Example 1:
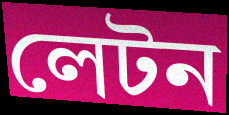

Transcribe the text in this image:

লেটন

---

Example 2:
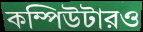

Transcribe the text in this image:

কম্পিউটারও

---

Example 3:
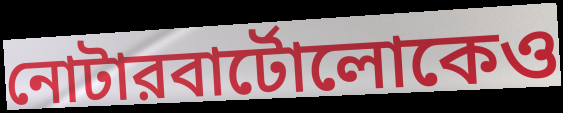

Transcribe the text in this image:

নোটারবার্টোলোকেও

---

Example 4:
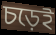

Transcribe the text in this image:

চড়েই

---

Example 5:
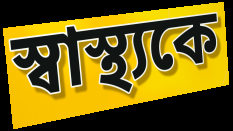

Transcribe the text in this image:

স্বাস্থ্যকে